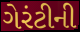
ગેરંટીની